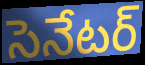
సెనేటర్